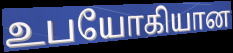
உபயோகியான